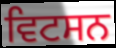
ਵਿਟਸਨ